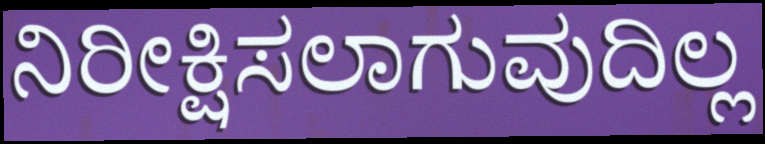
ನಿರೀಕ್ಷಿಸಲಾಗುವುದಿಲ್ಲ